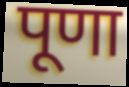
पूणा